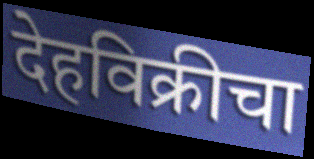
देहविक्रीचा